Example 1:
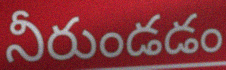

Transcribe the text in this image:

నీరుండడం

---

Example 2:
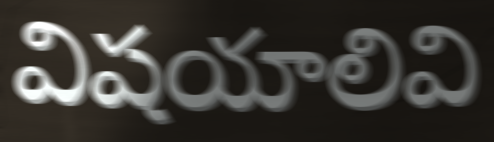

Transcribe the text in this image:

విషయాలివి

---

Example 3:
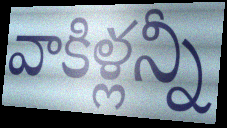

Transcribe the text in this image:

వాకిళ్లన్నీ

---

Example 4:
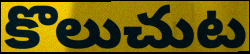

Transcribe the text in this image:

కొలుచుట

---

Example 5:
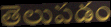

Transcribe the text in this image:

తెలుపడం